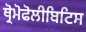
ਥ੍ਰੋਮੋਫੋਲੀਬਿਟਿਸ